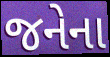
જનેના